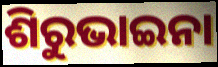
ଶିରୁଭାଇନା